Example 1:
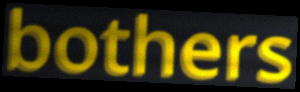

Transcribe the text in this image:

bothers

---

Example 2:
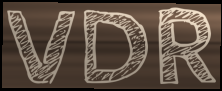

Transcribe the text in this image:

VDR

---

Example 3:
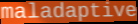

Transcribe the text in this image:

maladaptive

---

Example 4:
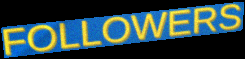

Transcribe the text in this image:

FOLLOWERS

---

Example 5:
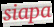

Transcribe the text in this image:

siapa